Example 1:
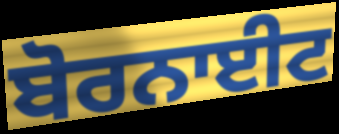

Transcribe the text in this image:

ਬੋਰਨਾਈਟ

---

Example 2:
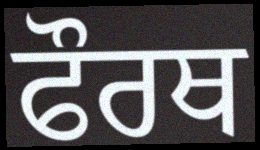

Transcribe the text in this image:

ਫੌਰਥ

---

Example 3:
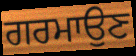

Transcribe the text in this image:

ਗਰਮਾਉਣ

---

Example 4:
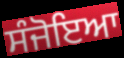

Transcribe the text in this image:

ਸੰਜੋਇਆ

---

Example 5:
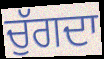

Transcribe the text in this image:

ਚੁੱਗਦਾ